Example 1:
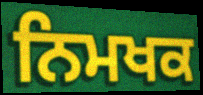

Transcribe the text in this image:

ਨਿਮਖਕ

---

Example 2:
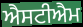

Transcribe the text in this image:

ਐਸਟੀਐਮ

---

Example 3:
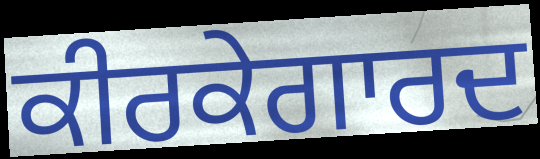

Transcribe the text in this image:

ਕੀਰਕੇਗਾਰਦ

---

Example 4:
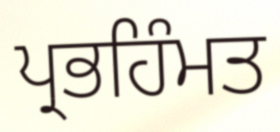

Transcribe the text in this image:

ਪ੍ਰਭਹਿੰਮਤ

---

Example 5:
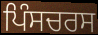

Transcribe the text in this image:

ਪਿੰਸਚਰਸ